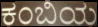
ಕಂಬಿಯ